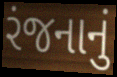
રંજનાનું